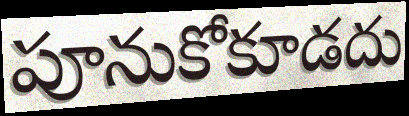
పూనుకోకూడదు